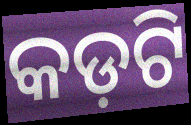
କଡ଼ଟି